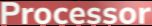
Processor